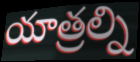
యాత్రల్ని